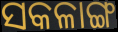
ସକଳାଙ୍ଗ